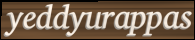
yeddyurappas